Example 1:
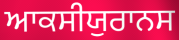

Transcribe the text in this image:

ਆਕਸੀਯੁਰਾਨਸ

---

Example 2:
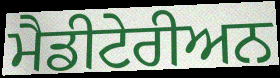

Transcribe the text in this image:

ਮੈਡੀਟੇਰੀਅਨ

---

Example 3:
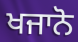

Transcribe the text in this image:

ਖਜਾਨੋ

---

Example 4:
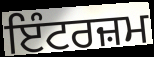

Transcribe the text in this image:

ਇੰਟਰਜ਼ਮ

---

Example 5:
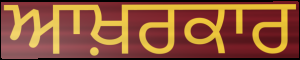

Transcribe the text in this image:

ਆਖ਼ਰਕਾਰ